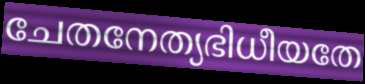
ചേതനേത്യഭിധീയതേ